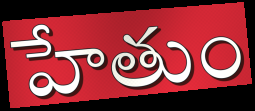
హేతుం